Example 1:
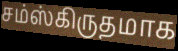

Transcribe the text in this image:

சம்ஸ்கிருதமாக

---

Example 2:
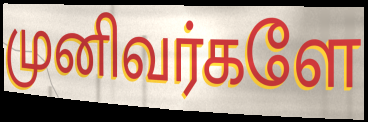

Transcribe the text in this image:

முனிவர்களே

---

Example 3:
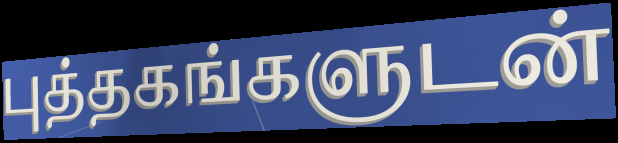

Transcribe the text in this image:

புத்தகங்களுடன்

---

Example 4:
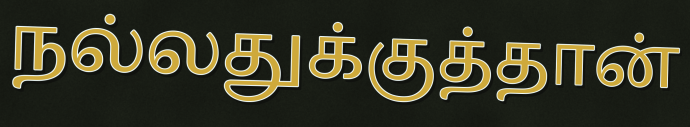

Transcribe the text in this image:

நல்லதுக்குத்தான்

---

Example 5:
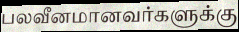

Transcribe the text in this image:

பலவீனமானவர்களுக்கு